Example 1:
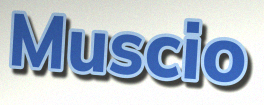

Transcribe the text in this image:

Muscio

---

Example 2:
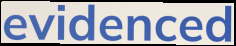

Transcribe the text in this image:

evidenced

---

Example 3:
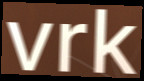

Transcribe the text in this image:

vrk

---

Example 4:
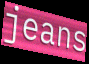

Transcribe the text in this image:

jeans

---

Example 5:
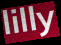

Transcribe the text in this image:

lilly